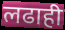
लढाही